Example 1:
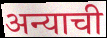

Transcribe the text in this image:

अन्याची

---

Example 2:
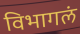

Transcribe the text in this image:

विभागलं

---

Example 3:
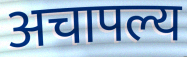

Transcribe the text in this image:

अचापल्य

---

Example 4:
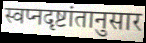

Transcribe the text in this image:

स्वप्नदृष्टांतानुसार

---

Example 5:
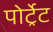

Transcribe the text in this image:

पोर्ट्रेट